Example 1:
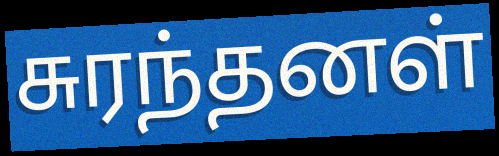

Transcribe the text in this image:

சுரந்தனள்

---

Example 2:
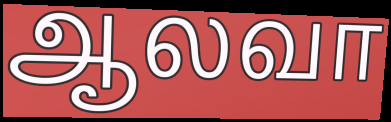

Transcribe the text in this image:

ஆலவா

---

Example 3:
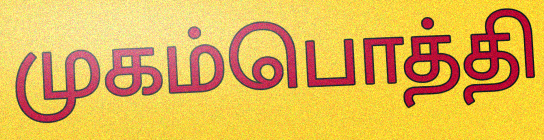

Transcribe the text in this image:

முகம்பொத்தி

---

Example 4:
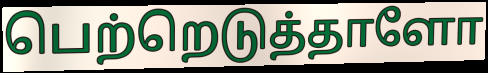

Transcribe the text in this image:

பெற்றெடுத்தாளோ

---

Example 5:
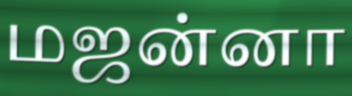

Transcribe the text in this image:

மஜன்னா